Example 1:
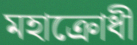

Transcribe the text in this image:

মহাক্রোধী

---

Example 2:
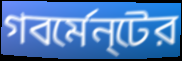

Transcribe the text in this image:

গবর্মেন্‌টের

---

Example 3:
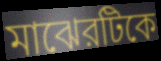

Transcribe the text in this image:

মাঝেরটিকে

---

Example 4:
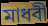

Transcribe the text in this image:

মাধবী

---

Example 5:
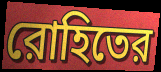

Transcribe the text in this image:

রোহিতের